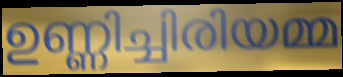
ഉണ്ണിച്ചിരിയമ്മ